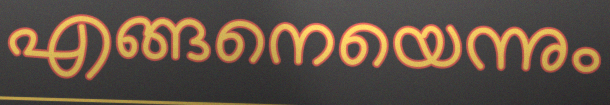
എങ്ങനെയെന്നും